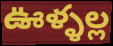
ఊళ్ళల్ల